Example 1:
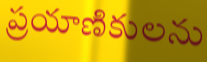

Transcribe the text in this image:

ప్రయాణికులను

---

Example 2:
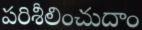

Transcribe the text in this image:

పరిశీలించుదాం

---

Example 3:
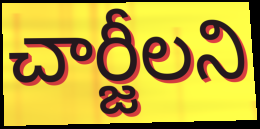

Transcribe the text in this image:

చార్జీలని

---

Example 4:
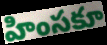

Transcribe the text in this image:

హింసకూ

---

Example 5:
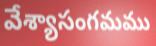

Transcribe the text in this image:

వేశ్యాసంగమము